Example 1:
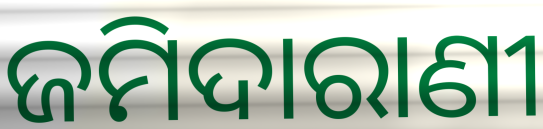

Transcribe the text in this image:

ଜମିଦାରାଣୀ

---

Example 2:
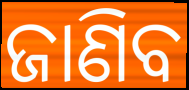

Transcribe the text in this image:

ଜାଣିବ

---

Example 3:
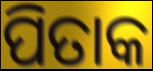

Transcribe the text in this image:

ପିତାକ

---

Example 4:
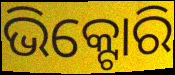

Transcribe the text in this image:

ଭିକ୍ଟୋରି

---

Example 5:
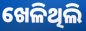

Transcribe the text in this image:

ଖେଳିଥିଲି